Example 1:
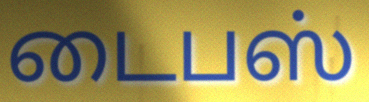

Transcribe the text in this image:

டைபஸ்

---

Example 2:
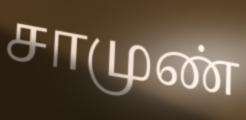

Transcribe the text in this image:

சாமுண்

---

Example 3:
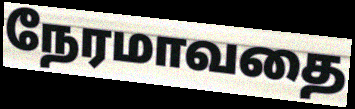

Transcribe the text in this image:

நேரமாவதை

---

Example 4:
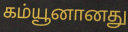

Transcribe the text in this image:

கம்யூனானது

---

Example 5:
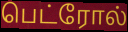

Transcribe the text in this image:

பெட்ரோல்